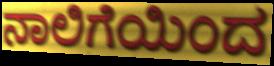
ನಾಲಿಗೆಯಿಂದ